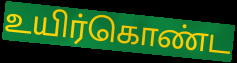
உயிர்கொண்ட